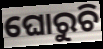
ଘୋରୁଚି